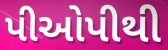
પીઓપીથી